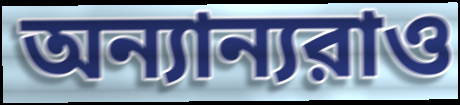
অন্যান্যরাও